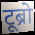
टूब्रो